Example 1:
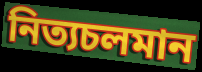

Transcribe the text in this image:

নিত্যচলমান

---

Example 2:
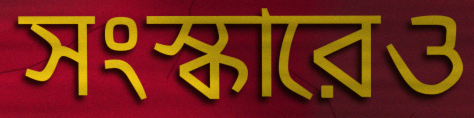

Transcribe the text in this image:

সংস্কারেও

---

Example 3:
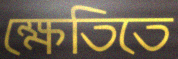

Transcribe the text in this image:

ক্ষেতিতে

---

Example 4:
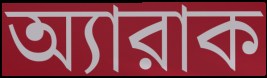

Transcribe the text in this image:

অ্যারাক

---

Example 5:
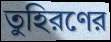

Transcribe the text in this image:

তুহিরণের